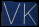
VK